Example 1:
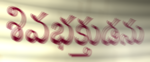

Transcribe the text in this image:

శివభక్తుడను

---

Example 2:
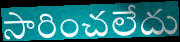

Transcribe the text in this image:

సారించలేదు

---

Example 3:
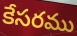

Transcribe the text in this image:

కేసరము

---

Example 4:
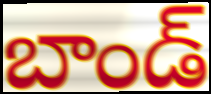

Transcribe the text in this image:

బాండ్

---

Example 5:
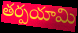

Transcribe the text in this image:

తర్పయామి